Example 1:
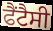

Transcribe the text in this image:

ਫੈਂਟੈਸੀ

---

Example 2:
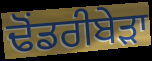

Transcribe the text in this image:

ਢੋਂਡਰੀਬੇੜਾ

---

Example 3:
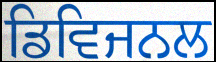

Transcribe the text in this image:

ਡਿਵਿਜਨਲ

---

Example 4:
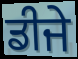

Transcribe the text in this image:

ਡੀਜੇ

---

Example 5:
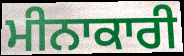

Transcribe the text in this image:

ਮੀਨਾਕਾਰੀ